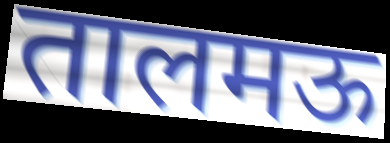
तालमऊ